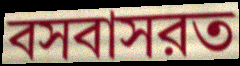
বসবাসরত